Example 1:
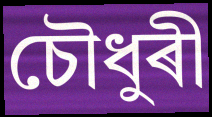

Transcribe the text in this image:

চৌধুৰী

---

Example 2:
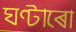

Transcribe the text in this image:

ঘণ্টাৰো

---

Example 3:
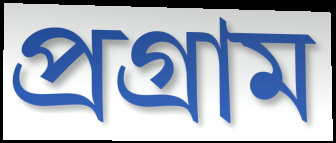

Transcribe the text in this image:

প্ৰগ্ৰাম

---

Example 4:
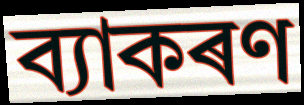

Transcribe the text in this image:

ব্যাকৰণ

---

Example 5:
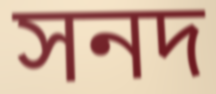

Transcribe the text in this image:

সনদ